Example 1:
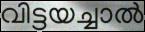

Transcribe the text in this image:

വിട്ടയച്ചാൽ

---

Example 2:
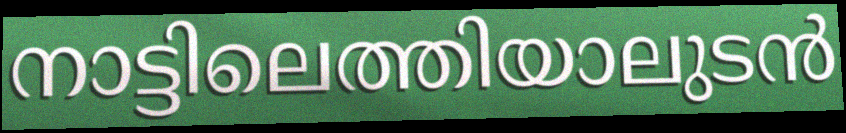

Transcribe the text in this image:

നാട്ടിലെത്തിയാലുടൻ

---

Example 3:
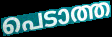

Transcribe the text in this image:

പെടാത്ത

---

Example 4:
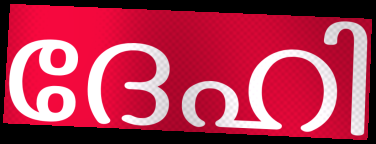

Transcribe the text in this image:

ദേഹി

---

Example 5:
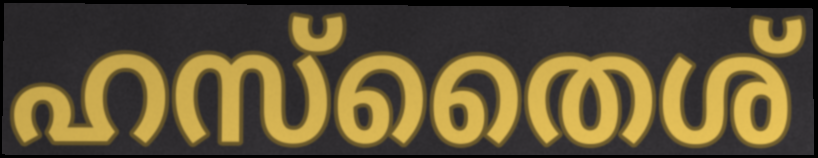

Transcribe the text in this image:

ഹസ്തൈശ്